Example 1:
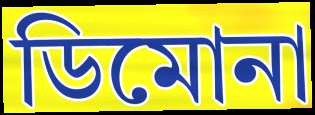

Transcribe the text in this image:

ডিমোনা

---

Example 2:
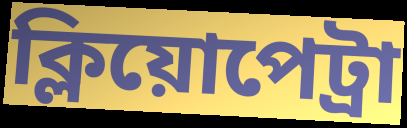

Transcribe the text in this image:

ক্লিয়োপেট্রা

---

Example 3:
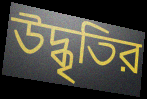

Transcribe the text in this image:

উদ্ধৃতির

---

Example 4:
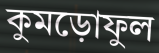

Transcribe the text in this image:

কুমড়োফুল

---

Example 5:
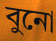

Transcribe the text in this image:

বুনো